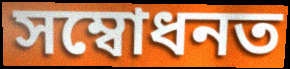
সম্বোধনত